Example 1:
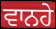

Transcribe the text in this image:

ਵਾਨਹੇ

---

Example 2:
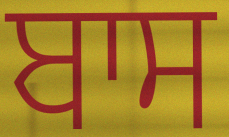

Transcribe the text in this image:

ਬਾਸ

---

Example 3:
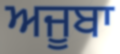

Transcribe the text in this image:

ਅਜੂਬਾ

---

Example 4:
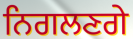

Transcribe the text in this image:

ਨਿਗਲਣਗੇ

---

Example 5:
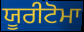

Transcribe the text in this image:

ਯੂਰੀਟੋਮਾ